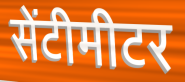
सेंटीमीटर